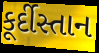
કૂર્દીસ્તાન